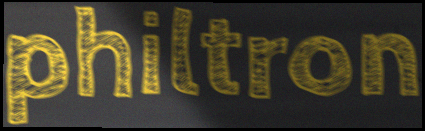
philtron